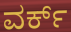
ವರ್ಕ್